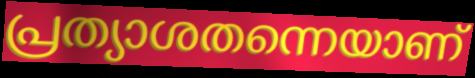
പ്രത്യാശതന്നെയാണ്